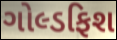
ગોલ્ડફિશ